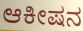
ಆಕೀಷನ